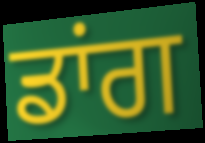
ਡਾਂਗ